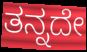
ತನ್ನದೇ